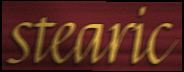
stearic